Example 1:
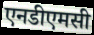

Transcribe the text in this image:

एनडीएमसी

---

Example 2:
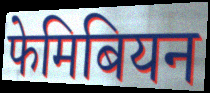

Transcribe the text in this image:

फेमिबियन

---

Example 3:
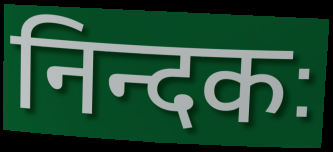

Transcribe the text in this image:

निन्दकः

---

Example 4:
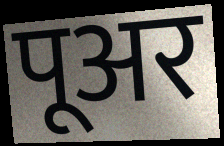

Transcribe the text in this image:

पूअर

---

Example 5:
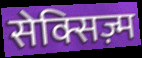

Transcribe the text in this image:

सेक्सिज़्म